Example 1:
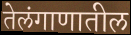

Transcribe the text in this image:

तेलंगाणातील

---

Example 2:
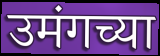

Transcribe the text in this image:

उमंगच्या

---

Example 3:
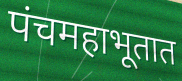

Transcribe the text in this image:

पंचमहाभूतात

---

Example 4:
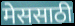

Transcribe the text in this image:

मेससाठी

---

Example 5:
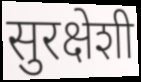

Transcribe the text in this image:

सुरक्षेशी